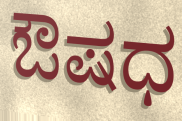
ಔಷಧ